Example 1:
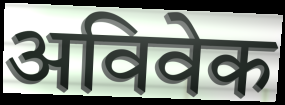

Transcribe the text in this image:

अविवेक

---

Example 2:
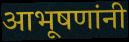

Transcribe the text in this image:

आभूषणांनी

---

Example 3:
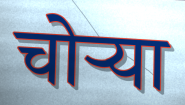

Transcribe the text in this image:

चोऱ्या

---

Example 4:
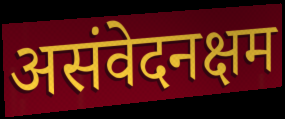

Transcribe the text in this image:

असंवेदनक्षम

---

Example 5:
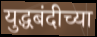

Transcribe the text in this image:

युद्धबंदीच्या